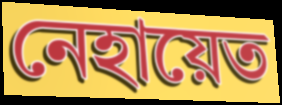
নেহায়েত